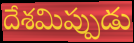
దేశమిప్పుడు